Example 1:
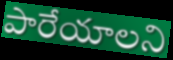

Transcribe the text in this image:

పారేయాలని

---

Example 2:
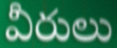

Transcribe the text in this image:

వీరులు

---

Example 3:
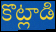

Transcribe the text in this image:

కొట్లాడి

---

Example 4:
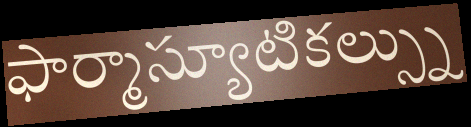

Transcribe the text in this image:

ఫార్మాస్యూటికల్స్ను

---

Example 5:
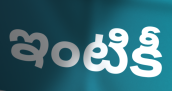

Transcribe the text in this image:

ఇంటికీ